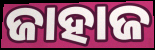
ଜାହାଜ